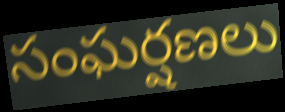
సంఘర్షణలు